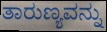
ತಾರುಣ್ಯವನ್ನು